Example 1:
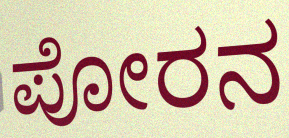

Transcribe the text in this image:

ಪೋರನ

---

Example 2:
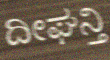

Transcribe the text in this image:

ದೀಘನ್ತಿ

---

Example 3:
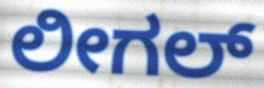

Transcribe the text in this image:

ಲೀಗಲ್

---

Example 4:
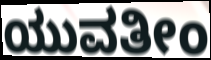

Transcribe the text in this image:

ಯುವತೀಂ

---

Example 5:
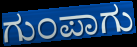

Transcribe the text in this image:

ಗುಂಪಾಗು